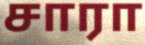
சாரா